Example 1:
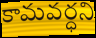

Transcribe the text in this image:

కామవర్ధని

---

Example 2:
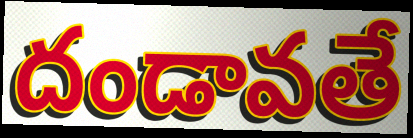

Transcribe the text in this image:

దండావతే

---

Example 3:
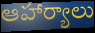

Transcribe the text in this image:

ఆహార్యాలు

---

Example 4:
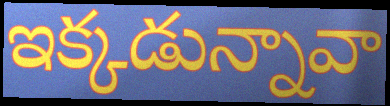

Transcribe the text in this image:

ఇక్కడున్నావా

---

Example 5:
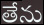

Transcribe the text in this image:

తేను